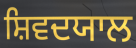
ਸ਼ਿਵਦਯਾਲ